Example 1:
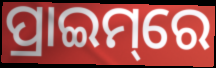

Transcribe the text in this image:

ପ୍ରାଇମ୍‌ରେ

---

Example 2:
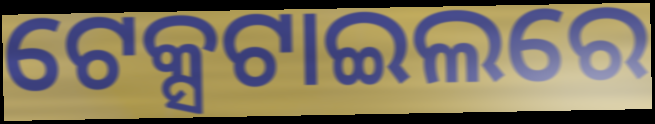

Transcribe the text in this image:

ଟେକ୍ସଟାଇଲରେ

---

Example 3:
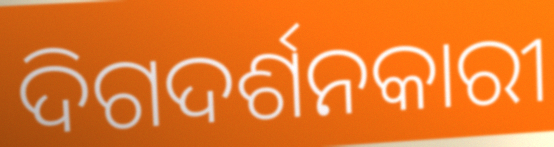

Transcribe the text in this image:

ଦିଗଦର୍ଶନକାରୀ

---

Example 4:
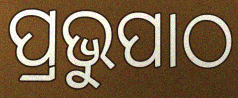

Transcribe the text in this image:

ପ୍ରଭୁପାଠ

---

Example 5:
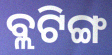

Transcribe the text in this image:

ବ୍ଲଟିଙ୍ଗ